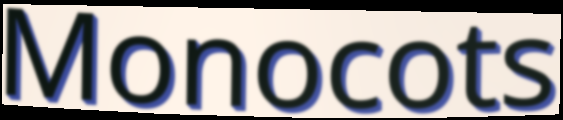
Monocots